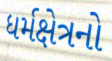
ધર્મક્ષેત્રનો